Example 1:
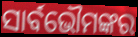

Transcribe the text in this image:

ସାର୍ବଭୌମଙ୍କର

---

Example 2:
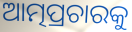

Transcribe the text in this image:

ଆତ୍ମପ୍ରଚାରକୁ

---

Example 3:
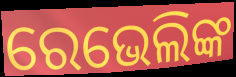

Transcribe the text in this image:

ରେଭେଲିଙ୍କ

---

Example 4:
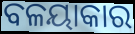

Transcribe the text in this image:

ବଳୟାକାର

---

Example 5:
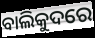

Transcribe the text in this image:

ବାଲିକୁଦରେ